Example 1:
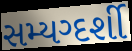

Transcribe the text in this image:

સમ્યગ્દર્શી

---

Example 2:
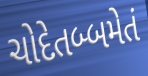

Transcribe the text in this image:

ચોદેતબ્બમેતં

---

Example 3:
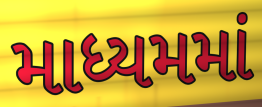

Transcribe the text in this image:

માધ્યમમાં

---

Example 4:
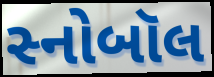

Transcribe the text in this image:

સ્નોબૉલ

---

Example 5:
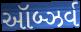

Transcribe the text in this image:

ઑબ્ઝર્વ